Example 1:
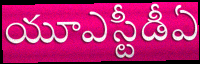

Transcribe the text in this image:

యూఎస్టీడీఏ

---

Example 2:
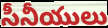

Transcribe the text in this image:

సీనీయులు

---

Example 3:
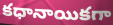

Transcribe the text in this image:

కధానాయికగా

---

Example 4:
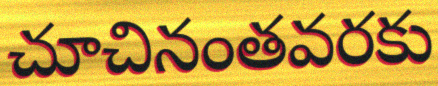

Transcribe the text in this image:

చూచినంతవరకు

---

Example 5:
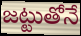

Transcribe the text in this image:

జట్టుతోనే